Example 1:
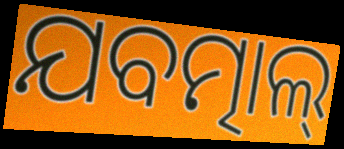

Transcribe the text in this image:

ଯବତ୍ମାଲ୍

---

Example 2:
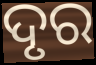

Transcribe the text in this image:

ଦୃର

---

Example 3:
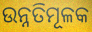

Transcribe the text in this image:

ଉନ୍ନତିମୂଳକ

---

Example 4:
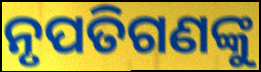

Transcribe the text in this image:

ନୃପତିଗଣଙ୍କୁ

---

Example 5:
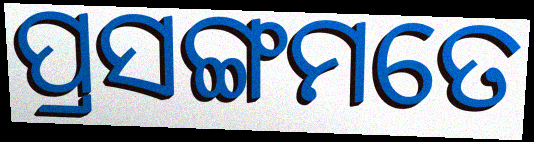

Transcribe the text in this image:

ପ୍ରସଙ୍ଗମତେ